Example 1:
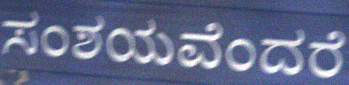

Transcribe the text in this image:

ಸಂಶಯವೆಂದರೆ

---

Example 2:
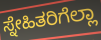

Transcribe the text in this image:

ಸ್ನೇಹಿತರಿಗೆಲ್ಲಾ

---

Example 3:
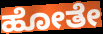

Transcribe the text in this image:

ಹೋತೇ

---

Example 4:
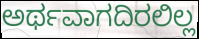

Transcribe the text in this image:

ಅರ್ಥವಾಗದಿರಲಿಲ್ಲ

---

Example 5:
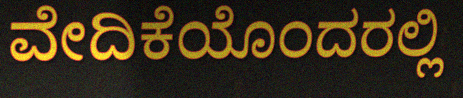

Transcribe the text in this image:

ವೇದಿಕೆಯೊಂದರಲ್ಲಿ